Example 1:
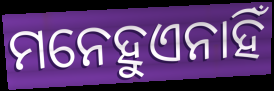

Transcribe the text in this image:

ମନେହୁଏନାହିଁ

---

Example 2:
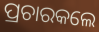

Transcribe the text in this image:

ପ୍ରଚାରକଲେ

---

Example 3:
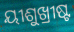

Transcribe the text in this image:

ୟୀଶୁଖ୍ରୀଷ୍ଟ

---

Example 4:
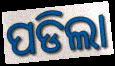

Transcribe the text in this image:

ପଡିଲା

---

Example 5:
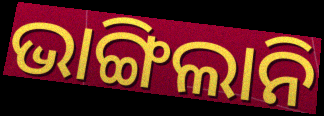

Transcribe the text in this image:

ଭାଙ୍ଗିଲାନି